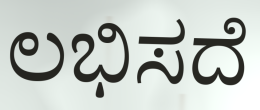
ಲಭಿಸದೆ